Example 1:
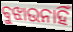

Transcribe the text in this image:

ବୁଝାଉନାହିଁ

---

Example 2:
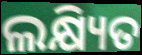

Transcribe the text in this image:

ଲକ୍ଷ୍ୟିତ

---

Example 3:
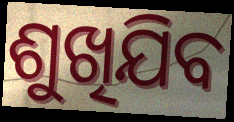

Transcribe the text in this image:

ଶୁଖିଯିବ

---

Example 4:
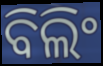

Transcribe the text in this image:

ବିଲିଂ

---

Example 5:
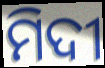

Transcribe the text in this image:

ମିଦୀ